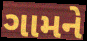
ગામને